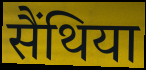
सैंथिया